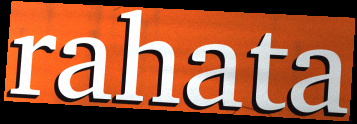
rahata